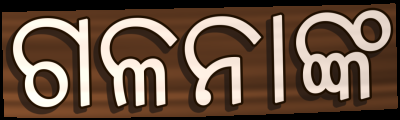
ଗଳନାଙ୍କ